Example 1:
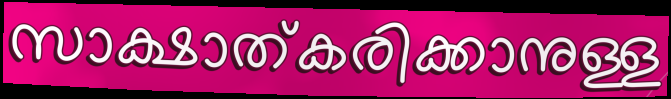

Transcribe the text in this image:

സാക്ഷാത്കരിക്കാനുള്ള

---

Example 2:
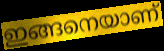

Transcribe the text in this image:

ഇങ്ങനെയാണ്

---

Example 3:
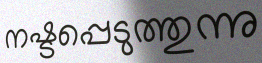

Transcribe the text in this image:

നഷ്ടപ്പെടുത്തുന്നു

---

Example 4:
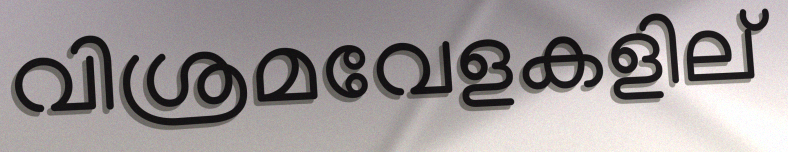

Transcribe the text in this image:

വിശ്രമവേളകളില്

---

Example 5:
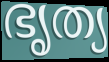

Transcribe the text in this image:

ഭൃത്യ